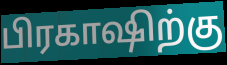
பிரகாஷிற்கு